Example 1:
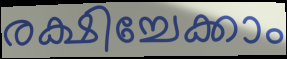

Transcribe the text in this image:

രക്ഷിച്ചേക്കാം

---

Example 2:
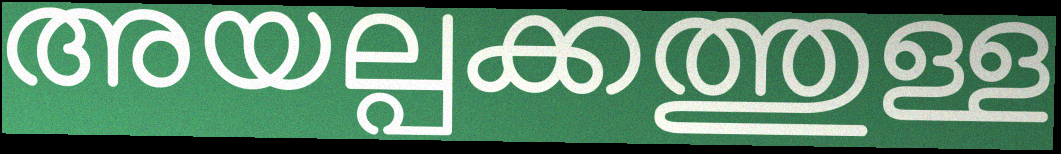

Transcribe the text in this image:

അയല്പക്കത്തുള്ള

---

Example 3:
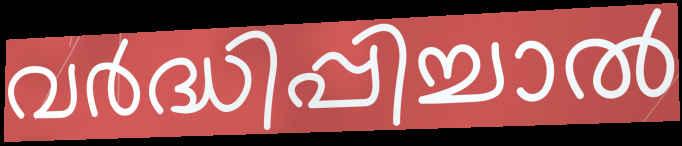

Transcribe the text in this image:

വർദ്ധിപ്പിച്ചാൽ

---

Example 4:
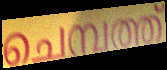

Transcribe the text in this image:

ചെമ്പത്ത്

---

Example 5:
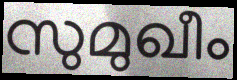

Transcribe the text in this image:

സുമുഖീം